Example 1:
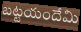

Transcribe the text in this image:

బట్టయందేమి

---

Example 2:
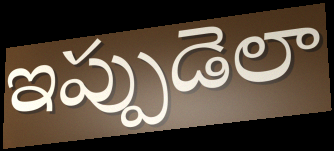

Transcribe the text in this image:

ఇప్పుడెలా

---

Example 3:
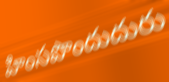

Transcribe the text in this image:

హింసపొందుదురు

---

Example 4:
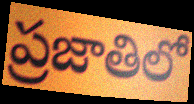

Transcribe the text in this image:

ప్రజాతిలో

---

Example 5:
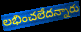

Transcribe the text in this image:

లభించలేదన్నారు